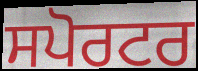
ਸਪੋਰਟਰ